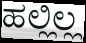
ಹಲ್ಲಿಲ್ಲ